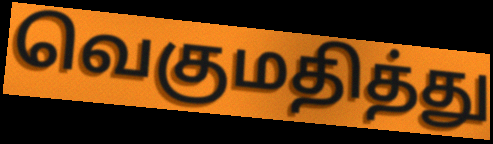
வெகுமதித்து